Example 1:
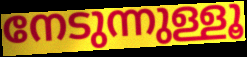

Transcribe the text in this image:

നേടുന്നുള്ളൂ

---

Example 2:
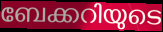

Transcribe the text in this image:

ബേക്കറിയുടെ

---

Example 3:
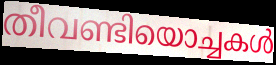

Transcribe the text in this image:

തീവണ്ടിയൊച്ചകൾ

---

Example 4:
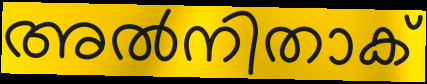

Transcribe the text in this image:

അൽനിതാക്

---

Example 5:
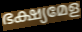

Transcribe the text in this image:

ഭക്ഷ്യമേള